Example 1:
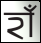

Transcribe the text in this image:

হাঁ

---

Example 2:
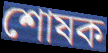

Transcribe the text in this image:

শোষক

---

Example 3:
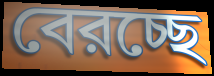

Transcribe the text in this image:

বেরচ্ছে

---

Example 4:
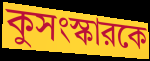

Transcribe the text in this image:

কুসংস্কারকে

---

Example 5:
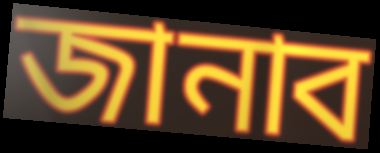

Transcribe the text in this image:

জানাব